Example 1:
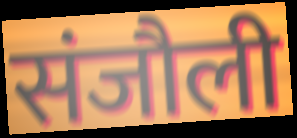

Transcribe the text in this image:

संजौली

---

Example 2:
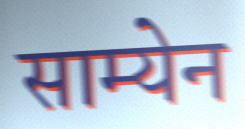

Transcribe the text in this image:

साम्येन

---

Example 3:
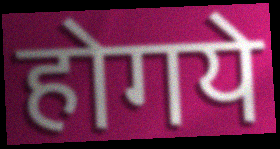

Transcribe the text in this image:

होगये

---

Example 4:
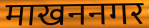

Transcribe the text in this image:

माखननगर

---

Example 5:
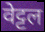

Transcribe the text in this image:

वेट्टल